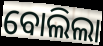
ବୋଲିଲା